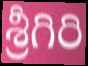
శ్రీగిరి